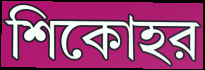
শিকোহর